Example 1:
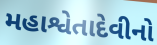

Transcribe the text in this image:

મહાશ્વેતાદેવીનો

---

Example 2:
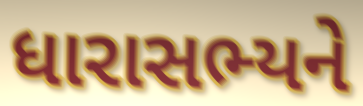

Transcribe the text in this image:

ધારાસભ્યને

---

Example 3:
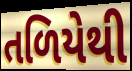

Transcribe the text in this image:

તળિયેથી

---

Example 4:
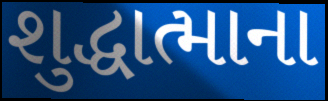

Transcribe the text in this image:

શુદ્ધાત્માના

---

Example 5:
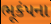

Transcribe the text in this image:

ભૂકંપના